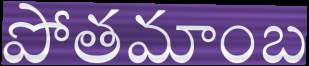
పోతమాంబ